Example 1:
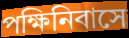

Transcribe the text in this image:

পক্ষিনিবাসে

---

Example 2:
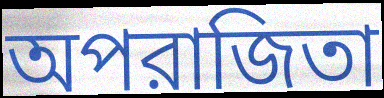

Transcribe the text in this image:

অপরাজিতা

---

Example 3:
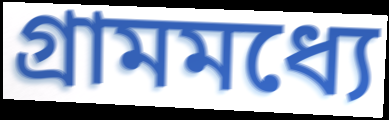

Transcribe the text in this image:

গ্রামমধ্যে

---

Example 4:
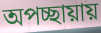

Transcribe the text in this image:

অপচ্ছায়ায়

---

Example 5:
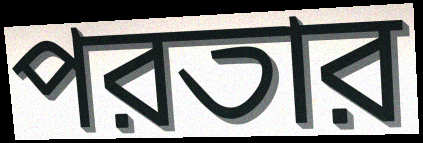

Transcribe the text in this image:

পরতার